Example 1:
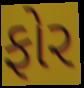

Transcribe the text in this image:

ફોર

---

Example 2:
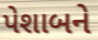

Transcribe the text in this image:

પેશાબને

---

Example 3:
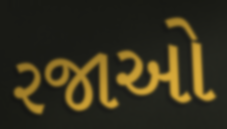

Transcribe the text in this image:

રજાઓ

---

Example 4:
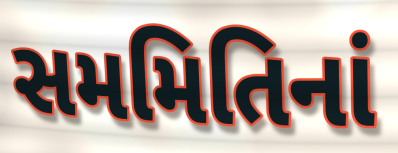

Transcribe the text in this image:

સમમિતિનાં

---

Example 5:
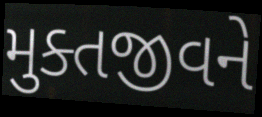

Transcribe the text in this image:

મુક્તજીવને